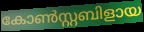
കോൺസ്റ്റബിളായ